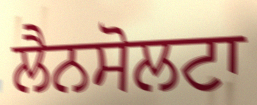
ਲੈਨਸੋਲਟਾ